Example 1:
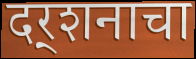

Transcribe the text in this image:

दर्शनाचा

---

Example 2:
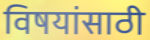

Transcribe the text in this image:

विषयांसाठी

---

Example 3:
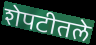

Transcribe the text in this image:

शेपटीतले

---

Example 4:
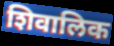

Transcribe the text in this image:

शिवालिक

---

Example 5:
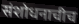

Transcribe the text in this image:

संशोधनाचीच